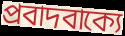
প্রবাদবাক্যে